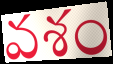
వశం